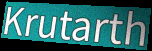
Krutarth